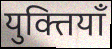
युक्तियाँ